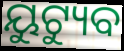
ୟୁଟ୍ୟୁବ